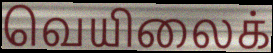
வெயிலைக்